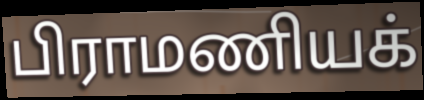
பிராமணியக்